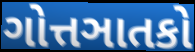
ગોત્તઞાતકો